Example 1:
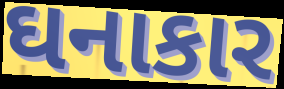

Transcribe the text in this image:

ઘનાકાર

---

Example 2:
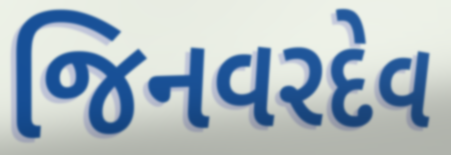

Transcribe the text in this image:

જિનવરદેવ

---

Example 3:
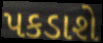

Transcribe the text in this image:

પકડાશે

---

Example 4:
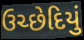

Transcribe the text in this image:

ઉચ્છેદિયું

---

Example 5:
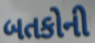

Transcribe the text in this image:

બતકોની